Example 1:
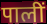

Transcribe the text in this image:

पालीं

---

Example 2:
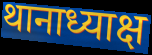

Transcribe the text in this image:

थानाध्याक्ष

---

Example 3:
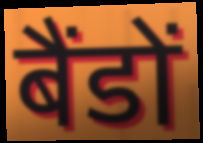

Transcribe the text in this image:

बैंडों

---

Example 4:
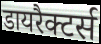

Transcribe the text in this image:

डायरैक्टर्स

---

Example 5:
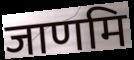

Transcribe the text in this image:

जाणमि